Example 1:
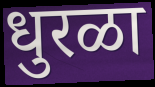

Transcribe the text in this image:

धुरळा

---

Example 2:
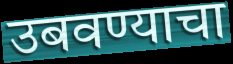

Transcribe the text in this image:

उबवण्याचा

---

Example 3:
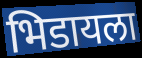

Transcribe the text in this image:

भिडायला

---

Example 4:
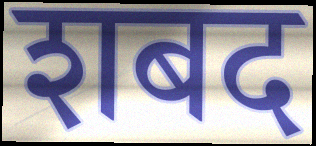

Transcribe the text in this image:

शबद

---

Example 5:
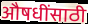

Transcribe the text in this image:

औषधींसाठी